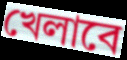
খেলাবে